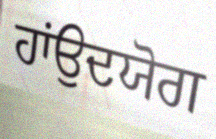
ਹਾਂਉਦਯੋਗ